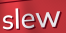
slew